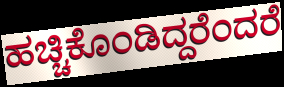
ಹಚ್ಚಿಕೊಂಡಿದ್ದರೆಂದರೆ